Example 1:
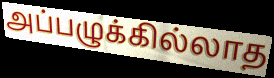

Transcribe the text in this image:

அப்பழுக்கில்லாத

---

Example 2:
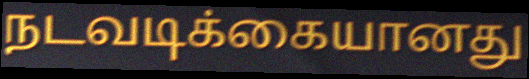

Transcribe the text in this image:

நடவடிக்கையானது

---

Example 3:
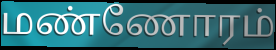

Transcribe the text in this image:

மண்ணோரம்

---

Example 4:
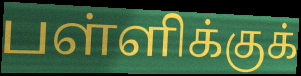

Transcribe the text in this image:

பள்ளிக்குக்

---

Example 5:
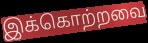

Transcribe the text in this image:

இக்கொற்றவை